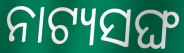
ନାଟ୍ୟସଙ୍ଘ